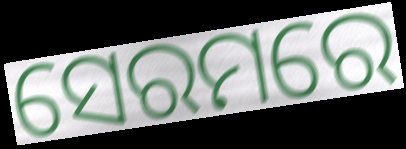
ସେରମରେ